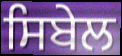
ਸਿਬੇਲ